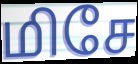
மிசே